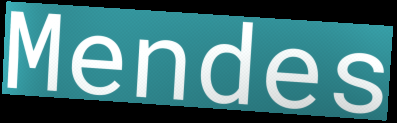
Mendes